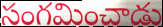
సంగమించాడు